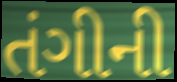
તંગીની